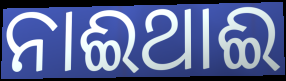
ନାଈଥାଈ